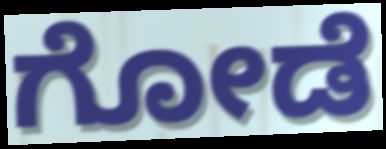
ಗೋಡೆ